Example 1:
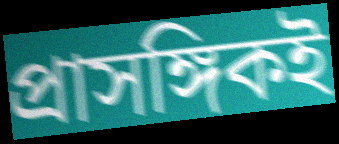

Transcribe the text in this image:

প্রাসঙ্গিকই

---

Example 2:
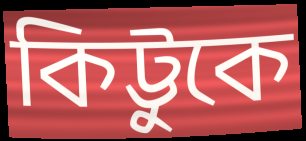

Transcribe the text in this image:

কিট্টুকে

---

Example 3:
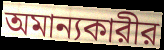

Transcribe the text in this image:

অমান্যকারীর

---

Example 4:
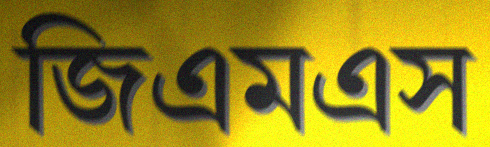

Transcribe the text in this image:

জিএমএস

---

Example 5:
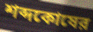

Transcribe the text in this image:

শব্দকোষের